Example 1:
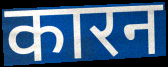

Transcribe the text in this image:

कारन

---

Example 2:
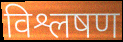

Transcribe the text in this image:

विश्लषण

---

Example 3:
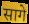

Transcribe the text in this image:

सागे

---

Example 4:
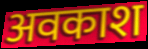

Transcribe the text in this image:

अवकाश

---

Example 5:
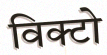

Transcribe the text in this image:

विक्टो